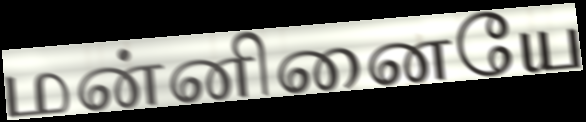
மன்னினையே